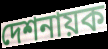
দেশনায়ক